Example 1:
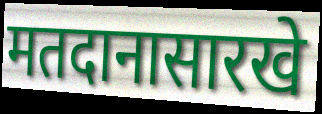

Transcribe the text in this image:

मतदानासारखे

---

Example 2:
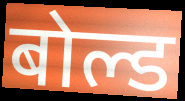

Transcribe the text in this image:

बोल्ड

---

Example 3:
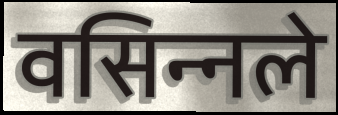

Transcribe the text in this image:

वसिन्नले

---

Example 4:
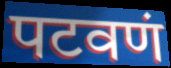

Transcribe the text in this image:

पटवणं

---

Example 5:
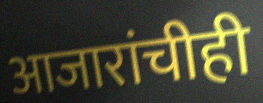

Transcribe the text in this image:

आजारांचीही